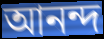
আনন্দ